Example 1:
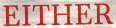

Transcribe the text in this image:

EITHER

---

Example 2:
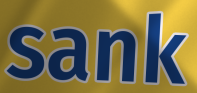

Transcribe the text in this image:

sank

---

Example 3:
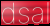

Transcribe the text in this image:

dsal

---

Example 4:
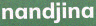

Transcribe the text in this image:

nandjina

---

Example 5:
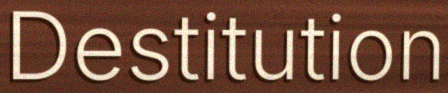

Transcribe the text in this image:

Destitution